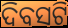
ଦିବସଟି